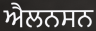
ਐਲਨਸਨ